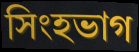
সিংহভাগ